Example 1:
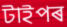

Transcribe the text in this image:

টাইপৰ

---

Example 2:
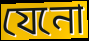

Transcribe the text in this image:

যেনো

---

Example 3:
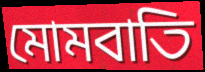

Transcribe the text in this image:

মোমবাতি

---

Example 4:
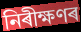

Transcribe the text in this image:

নিৰীক্ষণৰ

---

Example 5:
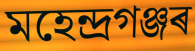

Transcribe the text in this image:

মহেন্দ্ৰগঞ্জৰ